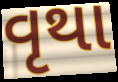
વૃથા